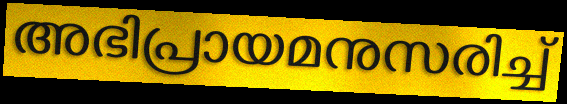
അഭിപ്രായമനുസരിച്ച്